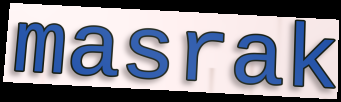
masrak